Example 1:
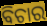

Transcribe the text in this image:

ବିଚାର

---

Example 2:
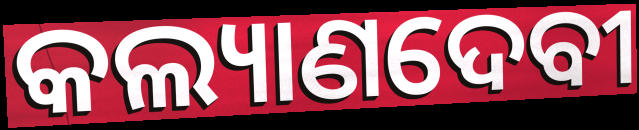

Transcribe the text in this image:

କଲ୍ୟାଣଦେବୀ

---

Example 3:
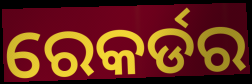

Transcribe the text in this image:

ରେକର୍ଡର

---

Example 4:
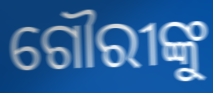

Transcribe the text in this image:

ଗୌରୀଙ୍କୁ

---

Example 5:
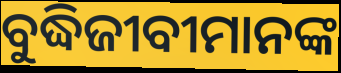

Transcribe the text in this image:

ବୁଦ୍ଧିଜୀବୀମାନଙ୍କ